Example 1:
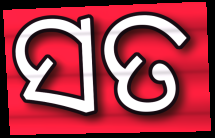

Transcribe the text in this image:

ସତ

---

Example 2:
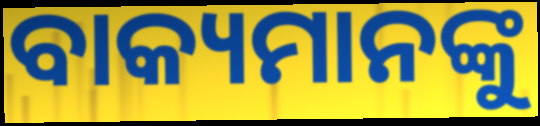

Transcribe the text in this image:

ବାକ୍ୟମାନଙ୍କୁ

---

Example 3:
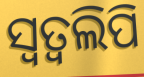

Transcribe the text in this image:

ସ୍ୱତ୍ୱଲିପି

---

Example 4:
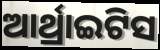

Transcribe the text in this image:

ଆର୍ଥ୍ରାଇଟିସ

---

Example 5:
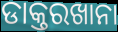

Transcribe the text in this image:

ଡାକ୍ତରଖାନା